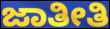
ಜಾತೀತಿ